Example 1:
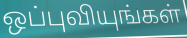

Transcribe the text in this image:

ஒப்புவியுங்கள்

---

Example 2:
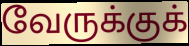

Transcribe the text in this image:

வேருக்குக்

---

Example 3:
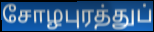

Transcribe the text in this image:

சோழபுரத்துப்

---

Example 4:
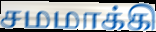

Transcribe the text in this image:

சமமாக்கி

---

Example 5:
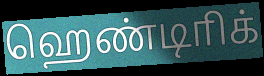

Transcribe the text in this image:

ஹெண்டிரிக்